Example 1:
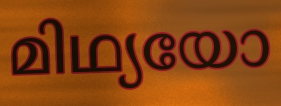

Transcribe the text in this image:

മിഥ്യയോ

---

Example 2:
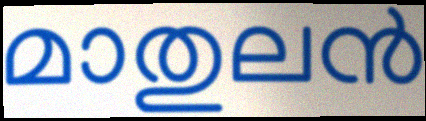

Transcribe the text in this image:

മാതുലൻ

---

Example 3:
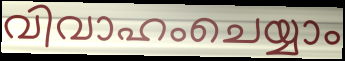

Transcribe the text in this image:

വിവാഹംചെയ്യാം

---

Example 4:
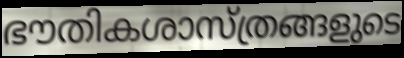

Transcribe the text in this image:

ഭൗതികശാസ്ത്രങ്ങളുടെ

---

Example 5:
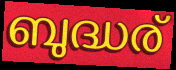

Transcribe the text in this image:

ബുദ്ധര്